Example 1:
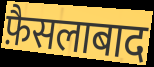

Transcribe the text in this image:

फ़ैसलाबाद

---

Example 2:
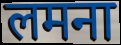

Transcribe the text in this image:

लमना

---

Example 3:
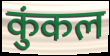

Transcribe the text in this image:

कुंकल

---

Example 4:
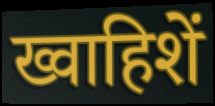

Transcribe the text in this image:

ख्वाहिशें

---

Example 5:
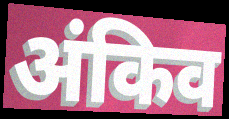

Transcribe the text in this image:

अंकिव